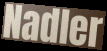
Nadler